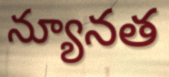
న్యూనత